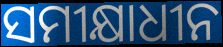
ସମୀକ୍ଷାଧୀନ